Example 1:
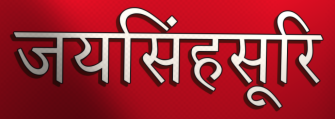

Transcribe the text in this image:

जयसिंहसूरि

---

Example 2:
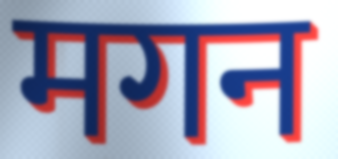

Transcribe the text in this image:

मगन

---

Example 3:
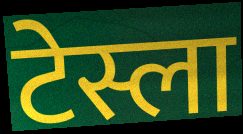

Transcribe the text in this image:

टेस्ला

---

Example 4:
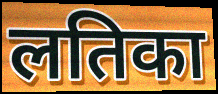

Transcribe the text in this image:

लतिका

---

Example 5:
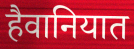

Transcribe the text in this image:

हैवानियात